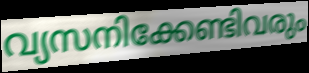
വ്യസനിക്കേണ്ടിവരും